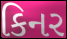
કિનર